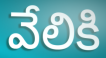
వేలికి